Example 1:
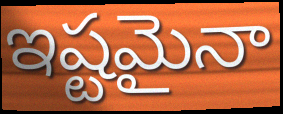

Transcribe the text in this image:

ఇష్టమైనా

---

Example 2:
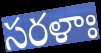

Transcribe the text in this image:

సరళాః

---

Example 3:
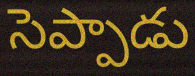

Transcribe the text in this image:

సెప్పాడు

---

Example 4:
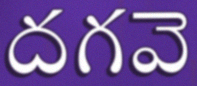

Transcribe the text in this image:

దగవె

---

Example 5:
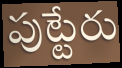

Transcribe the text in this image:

పుట్టేరు